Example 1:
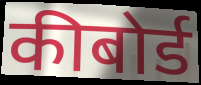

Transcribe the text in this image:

कीबोर्ड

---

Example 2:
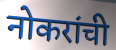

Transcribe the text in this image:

नोकरांची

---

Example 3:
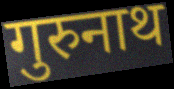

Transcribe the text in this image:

गुरुनाथ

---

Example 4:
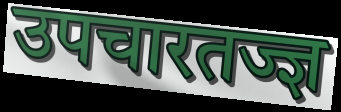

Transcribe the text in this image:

उपचारतज्ज्ञ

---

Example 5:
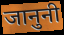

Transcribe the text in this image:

जानुनी